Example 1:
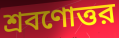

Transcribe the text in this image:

শ্রবণোত্তর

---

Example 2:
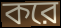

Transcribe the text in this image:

করে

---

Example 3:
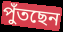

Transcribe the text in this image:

পুঁতছেন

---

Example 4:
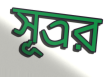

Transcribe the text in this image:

সূত্রর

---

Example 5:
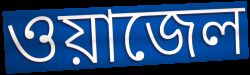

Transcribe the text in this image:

ওয়াজেল